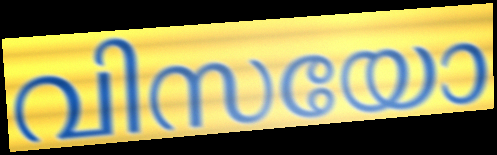
വിസയോ